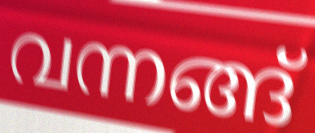
വന്നങ്ങ്